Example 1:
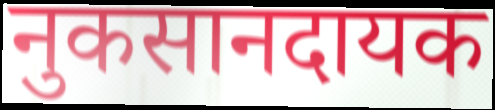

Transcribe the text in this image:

नुकसानदायक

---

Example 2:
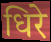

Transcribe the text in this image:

धिरे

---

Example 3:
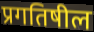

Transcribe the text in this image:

प्रगतिषील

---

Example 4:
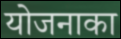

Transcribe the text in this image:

योजनाका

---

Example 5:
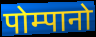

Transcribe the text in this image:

पोम्पानो